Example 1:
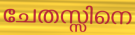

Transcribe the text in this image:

ചേതസ്സിനെ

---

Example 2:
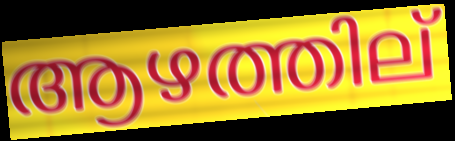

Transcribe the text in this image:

ആഴത്തില്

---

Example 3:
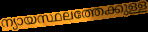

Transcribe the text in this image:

ന്യായസ്ഥലത്തേക്കുള്ള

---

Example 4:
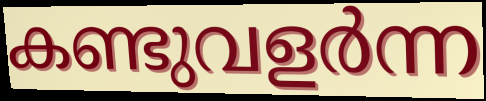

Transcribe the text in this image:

കണ്ടുവളർന്ന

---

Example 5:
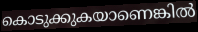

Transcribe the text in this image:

കൊടുക്കുകയാണെങ്കിൽ